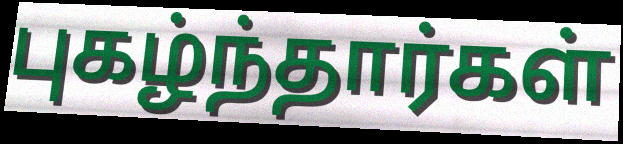
புகழ்ந்தார்கள்